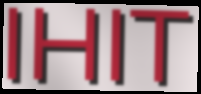
IHIT